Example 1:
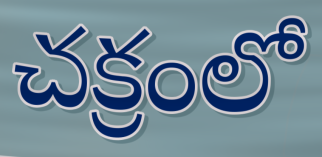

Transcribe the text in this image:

చక్రంలో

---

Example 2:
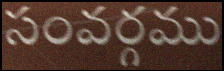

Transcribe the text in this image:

సంవర్గము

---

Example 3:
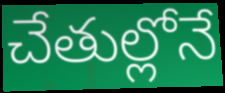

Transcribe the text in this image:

చేతుల్లోనే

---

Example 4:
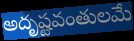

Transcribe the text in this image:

అదృష్టవంతులమే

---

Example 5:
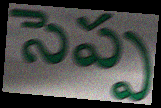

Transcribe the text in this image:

సెప్ప